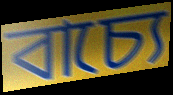
বাচ্যে